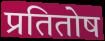
प्रतितोष